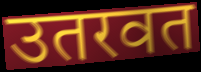
उतरवत